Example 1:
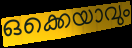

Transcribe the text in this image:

ഒക്കെയാവും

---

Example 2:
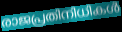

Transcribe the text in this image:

രാജപ്രതിനിധികൾ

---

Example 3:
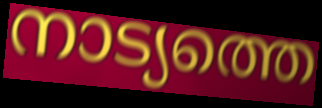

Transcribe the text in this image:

നാട്യത്തെ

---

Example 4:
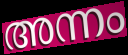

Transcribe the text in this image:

അന്നം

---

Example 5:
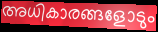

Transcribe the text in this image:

അധികാരങ്ങളോടും